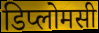
डिप्लोमसी